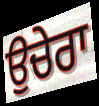
ਉਚੇਰਾ